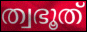
ത്വഭൂത്